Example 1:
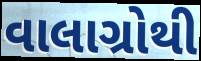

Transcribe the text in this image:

વાલાગ્રોથી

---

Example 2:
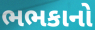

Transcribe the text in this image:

ભભકાનો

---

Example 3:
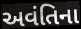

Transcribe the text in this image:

અવંતિના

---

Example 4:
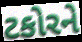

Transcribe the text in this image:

ટકોરને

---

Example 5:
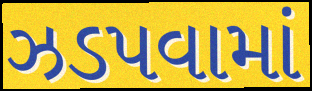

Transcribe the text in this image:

ઝડપવામાં